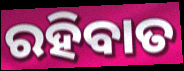
ରହିବାତ